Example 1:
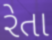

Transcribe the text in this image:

રેતા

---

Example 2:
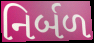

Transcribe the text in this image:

નિર્બળ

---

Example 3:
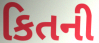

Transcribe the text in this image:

કિતની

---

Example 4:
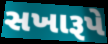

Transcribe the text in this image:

સખારૂપે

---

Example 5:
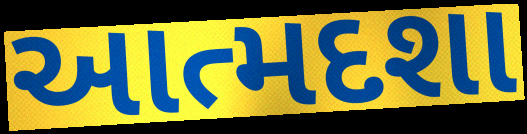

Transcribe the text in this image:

આત્મદશા